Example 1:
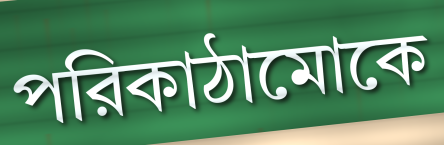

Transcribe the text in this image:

পরিকাঠামোকে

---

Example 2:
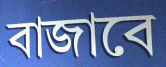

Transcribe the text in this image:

বাজাবে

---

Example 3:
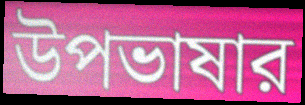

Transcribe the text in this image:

উপভাষার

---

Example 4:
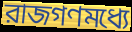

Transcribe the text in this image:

রাজগণমধ্যে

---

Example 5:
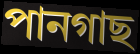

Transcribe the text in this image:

পানগাছ